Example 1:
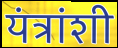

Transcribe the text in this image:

यंत्रांशी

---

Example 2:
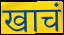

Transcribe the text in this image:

खाचं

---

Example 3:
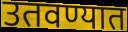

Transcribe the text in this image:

उतवण्यात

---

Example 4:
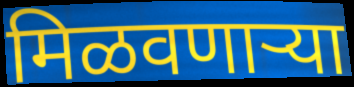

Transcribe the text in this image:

मिळवणाऱ्या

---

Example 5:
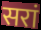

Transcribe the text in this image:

सरां